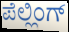
ಪೆಲ್ಲಿಂಗ್